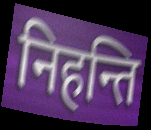
निहन्ति